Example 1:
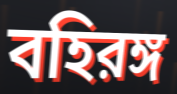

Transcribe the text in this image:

বহিরঙ্গ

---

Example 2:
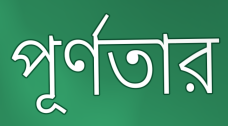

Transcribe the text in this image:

পূর্ণতার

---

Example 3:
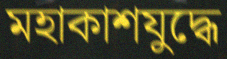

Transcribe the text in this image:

মহাকাশযুদ্ধে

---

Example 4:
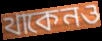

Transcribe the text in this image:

থাকেনও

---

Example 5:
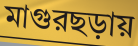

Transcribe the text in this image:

মাগুরছড়ায়